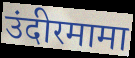
उंदीरमामा